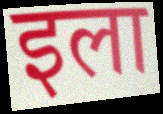
इला